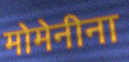
मोमेनीना